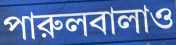
পারুলবালাও